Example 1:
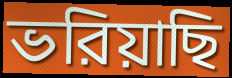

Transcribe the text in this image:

ভরিয়াছি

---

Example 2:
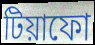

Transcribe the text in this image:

টিয়াফো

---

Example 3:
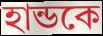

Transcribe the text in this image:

হান্ডকে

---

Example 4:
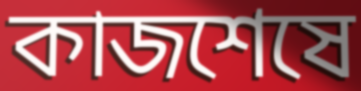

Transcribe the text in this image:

কাজশেষে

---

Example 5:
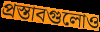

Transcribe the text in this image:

প্রস্তাবগুলোও